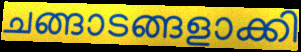
ചങ്ങാടങ്ങളാക്കി